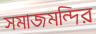
সমাজমন্দির